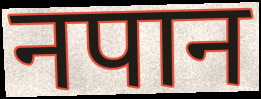
नपान